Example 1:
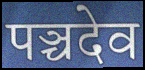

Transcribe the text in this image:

पञ्चदेव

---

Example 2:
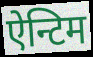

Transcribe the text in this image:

ऐन्टिम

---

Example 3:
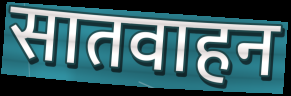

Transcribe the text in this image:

सातवाहन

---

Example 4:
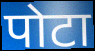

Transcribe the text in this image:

पोटा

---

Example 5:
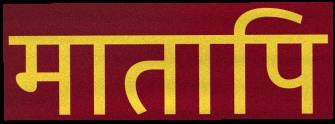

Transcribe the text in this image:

मातापि